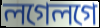
লগেলগে